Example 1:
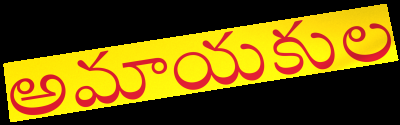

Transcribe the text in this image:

అమాయకుల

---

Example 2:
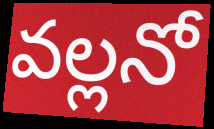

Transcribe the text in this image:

వల్లనో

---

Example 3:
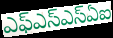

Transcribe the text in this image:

ఎఫ్ఎస్ఎస్ఏఐ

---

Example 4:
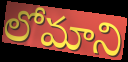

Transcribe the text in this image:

లోమాని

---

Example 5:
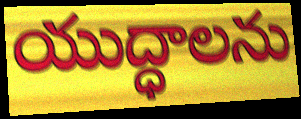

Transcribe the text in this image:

యుద్ధాలను